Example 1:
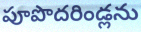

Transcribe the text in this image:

పూపొదరిండ్లను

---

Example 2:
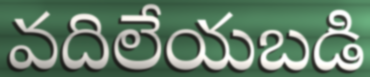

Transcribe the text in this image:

వదిలేయబడి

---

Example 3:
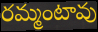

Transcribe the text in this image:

రమ్మంటావు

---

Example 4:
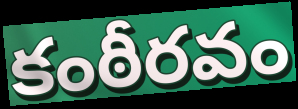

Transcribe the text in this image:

కంఠీరవం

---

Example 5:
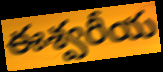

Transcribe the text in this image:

ఈశ్వరీయ